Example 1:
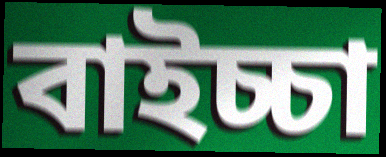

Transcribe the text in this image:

বাইচ্চা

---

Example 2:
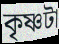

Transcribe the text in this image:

কৃষ্ণটা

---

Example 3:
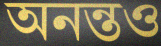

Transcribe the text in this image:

অনন্তও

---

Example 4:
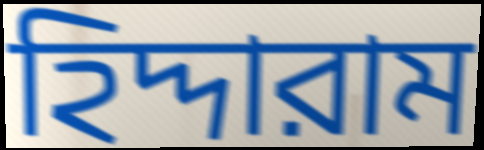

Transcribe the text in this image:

হিদ্দারাম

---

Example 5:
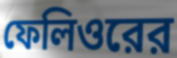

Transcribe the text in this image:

ফেলিওরের